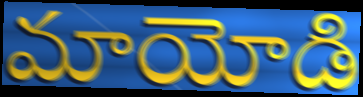
మాయోడి